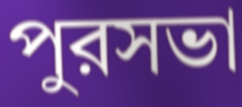
পুরসভা